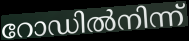
റോഡിൽനിന്ന്